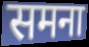
समना